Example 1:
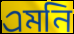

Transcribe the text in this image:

এমনি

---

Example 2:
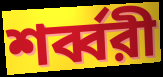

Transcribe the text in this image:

শর্ব্বরী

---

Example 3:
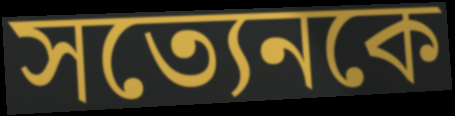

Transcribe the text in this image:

সত্যেনকে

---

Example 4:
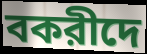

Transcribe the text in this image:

বকরীদে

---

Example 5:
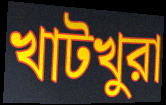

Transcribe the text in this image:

খাটখুরা